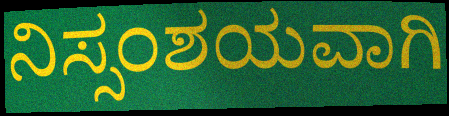
ನಿಸ್ಸಂಶಯವಾಗಿ